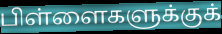
பிள்ளைகளுக்குக்